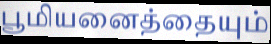
பூமியனைத்தையும்